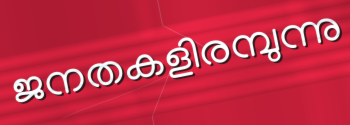
ജനതകളിരമ്പുന്നു